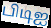
பிடிஐ